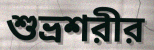
শুভ্রশরীর